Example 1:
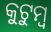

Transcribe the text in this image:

କୁଟୁମ୍ଵ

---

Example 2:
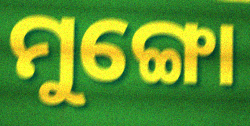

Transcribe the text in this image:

ମୁଙ୍ଗୋ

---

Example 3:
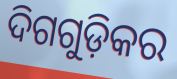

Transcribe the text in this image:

ଦିଗଗୁଡ଼ିକର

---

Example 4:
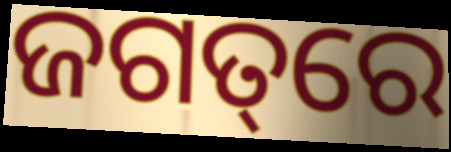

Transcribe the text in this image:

ଜଗତ୍‌ରେ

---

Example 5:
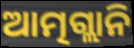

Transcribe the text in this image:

ଆତ୍ମଗ୍ଲାନି